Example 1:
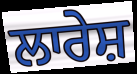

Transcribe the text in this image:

ਲਾਰੇਸ਼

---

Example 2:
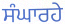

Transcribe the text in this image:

ਸੰਘਾਰਹੇ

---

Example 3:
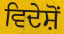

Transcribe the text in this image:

ਵਿਦੇਸ਼ੋਂ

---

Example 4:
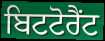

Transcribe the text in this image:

ਬਿਟਟੋਰੈਂਟ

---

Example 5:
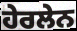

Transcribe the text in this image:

ਹੇਰਲੇਨ